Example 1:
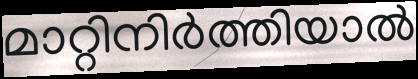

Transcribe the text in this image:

മാറ്റിനിർത്തിയാൽ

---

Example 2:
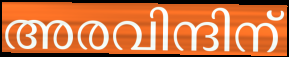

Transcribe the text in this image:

അരവിന്ദിന്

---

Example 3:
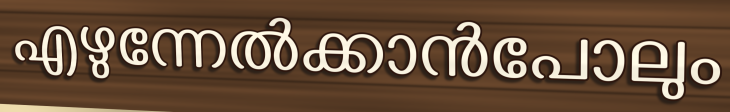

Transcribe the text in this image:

എഴുന്നേൽക്കാൻപോലും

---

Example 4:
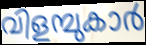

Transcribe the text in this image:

വിളമ്പുകാർ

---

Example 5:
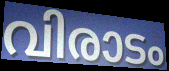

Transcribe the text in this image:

വിരാടം